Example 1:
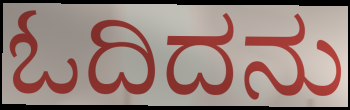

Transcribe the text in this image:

ಓದಿದನು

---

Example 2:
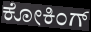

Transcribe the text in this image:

ಕೋಕಿಂಗ್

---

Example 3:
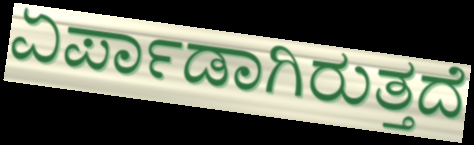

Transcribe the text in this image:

ಏರ್ಪಾಡಾಗಿರುತ್ತದೆ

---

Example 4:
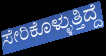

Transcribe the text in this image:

ಸೇರಿಕೊಳ್ಳುತ್ತಿದ್ದೆ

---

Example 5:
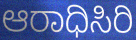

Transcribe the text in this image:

ಆರಾಧಿಸಿರಿ